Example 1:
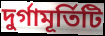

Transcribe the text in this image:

দুর্গামূর্তিটি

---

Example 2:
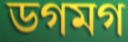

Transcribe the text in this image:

ডগমগ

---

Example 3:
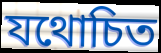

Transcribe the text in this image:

যথোচিত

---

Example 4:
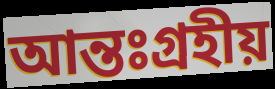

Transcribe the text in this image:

আন্তঃগ্রহীয়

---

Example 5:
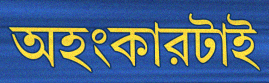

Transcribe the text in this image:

অহংকারটাই